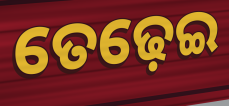
ତେଢ଼େଇ